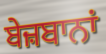
ਬੇਜ਼ਬਾਨਾਂ